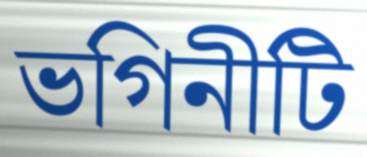
ভগিনীটি